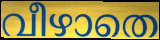
വീഴാതെ